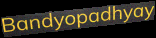
Bandyopadhyay